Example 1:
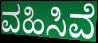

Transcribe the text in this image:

ವಹಿಸಿವೆ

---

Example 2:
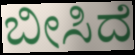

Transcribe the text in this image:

ಬೀಸಿದೆ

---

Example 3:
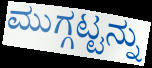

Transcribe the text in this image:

ಮುಗ್ಗಟ್ಟನ್ನು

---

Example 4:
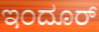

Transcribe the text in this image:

ಇಂದೂರ್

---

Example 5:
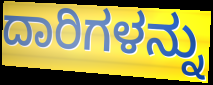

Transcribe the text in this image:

ದಾರಿಗಳನ್ನು